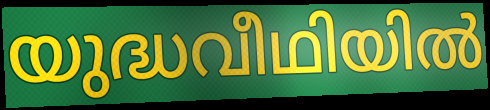
യുദ്ധവീഥിയിൽ